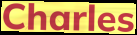
Charles